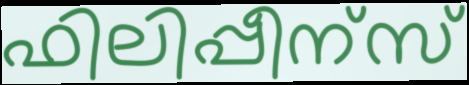
ഫിലിപ്പീന്സ്